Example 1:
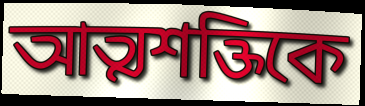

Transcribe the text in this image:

আত্মশক্তিকে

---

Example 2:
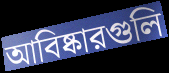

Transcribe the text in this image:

আবিষ্কারগুলি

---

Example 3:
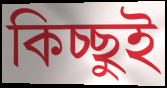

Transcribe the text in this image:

কিচ্ছুই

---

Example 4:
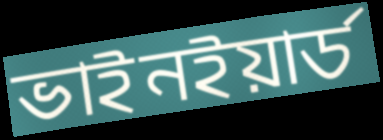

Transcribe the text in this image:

ভাইনইয়ার্ড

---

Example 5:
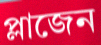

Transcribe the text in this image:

প্লাজেন